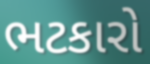
ભટકારો